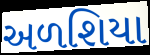
અળશિયા